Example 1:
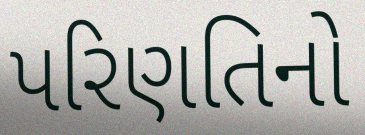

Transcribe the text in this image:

પરિણતિનો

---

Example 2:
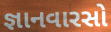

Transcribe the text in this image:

જ્ઞાનવારસો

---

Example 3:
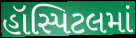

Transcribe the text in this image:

હૉસ્પિટલમાં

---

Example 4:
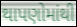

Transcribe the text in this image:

થાપણોમાંથી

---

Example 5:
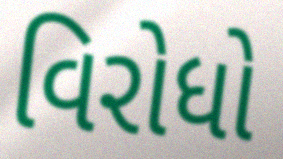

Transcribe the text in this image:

વિરોધો